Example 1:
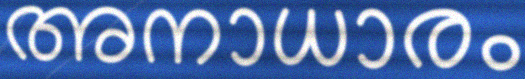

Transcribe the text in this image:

അനാധാരം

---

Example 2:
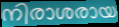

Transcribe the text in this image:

നിരാശരായ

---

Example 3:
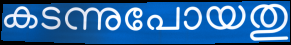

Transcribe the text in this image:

കടന്നുപോയതു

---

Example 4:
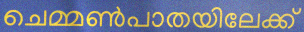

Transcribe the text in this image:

ചെമ്മൺപാതയിലേക്ക്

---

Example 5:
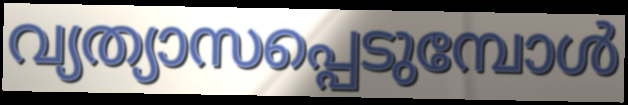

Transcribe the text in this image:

വ്യത്യാസപ്പെടുമ്പോൾ